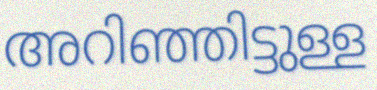
അറിഞ്ഞിട്ടുള്ള